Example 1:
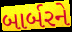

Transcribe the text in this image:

બાર્બરને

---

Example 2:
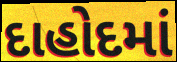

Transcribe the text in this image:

દાહોદમાં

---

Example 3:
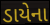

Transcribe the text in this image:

ડાયેના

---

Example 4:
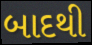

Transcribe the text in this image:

બાદથી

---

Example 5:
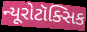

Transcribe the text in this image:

ન્યૂરોટૉક્સિક